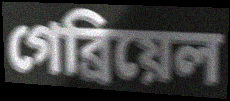
গেব্ৰিয়েল